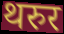
थरुर